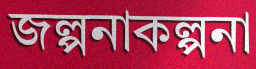
জল্পনাকল্পনা